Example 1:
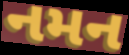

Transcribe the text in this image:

નમન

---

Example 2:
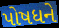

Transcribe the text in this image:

પોષધને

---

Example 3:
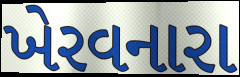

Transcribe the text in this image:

ખેરવનારા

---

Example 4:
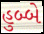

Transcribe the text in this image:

હુબ્બે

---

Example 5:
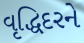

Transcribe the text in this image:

વૃદ્ધિદરને